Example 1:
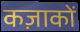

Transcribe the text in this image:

कज़ाकों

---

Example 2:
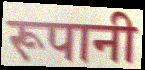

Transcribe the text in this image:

रूपानी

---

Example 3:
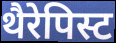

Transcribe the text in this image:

थैरेपिस्ट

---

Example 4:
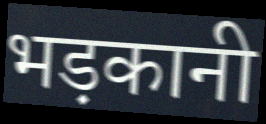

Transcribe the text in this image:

भड़कानी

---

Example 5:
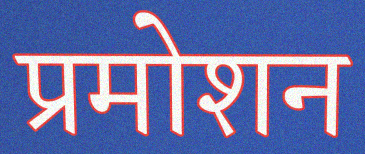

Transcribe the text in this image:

प्रमोशन